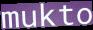
mukto